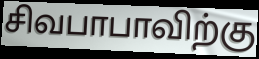
சிவபாபாவிற்கு